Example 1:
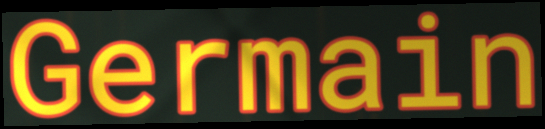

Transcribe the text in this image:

Germain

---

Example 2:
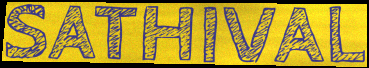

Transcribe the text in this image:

SATHIVAL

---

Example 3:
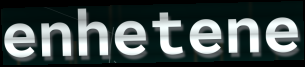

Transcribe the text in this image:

enhetene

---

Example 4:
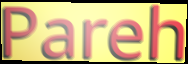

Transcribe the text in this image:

Pareh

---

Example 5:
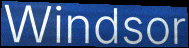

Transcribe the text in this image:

Windsor